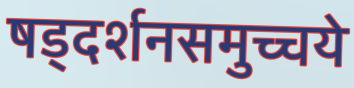
षड्दर्शनसमुच्चये